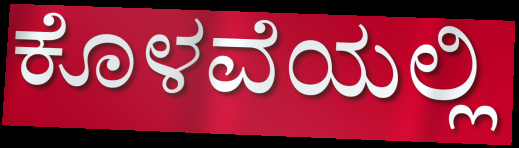
ಕೊಳವೆಯಲ್ಲಿ